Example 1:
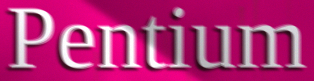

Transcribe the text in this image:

Pentium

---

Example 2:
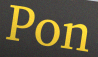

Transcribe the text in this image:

Pon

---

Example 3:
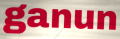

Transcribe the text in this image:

ganun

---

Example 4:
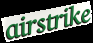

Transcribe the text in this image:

airstrike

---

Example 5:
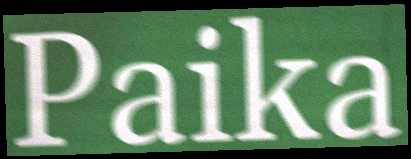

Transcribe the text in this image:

Paika